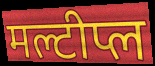
मल्टीप्ल